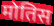
मोतिस